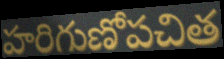
హరిగుణోపచిత